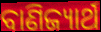
ବାଣିଜ୍ୟାର୍ଥ